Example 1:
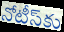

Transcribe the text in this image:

నోటీస్‌కు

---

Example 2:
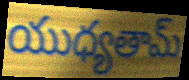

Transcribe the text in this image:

యుధ్యతామ్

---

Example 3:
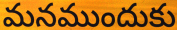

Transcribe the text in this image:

మనముందుకు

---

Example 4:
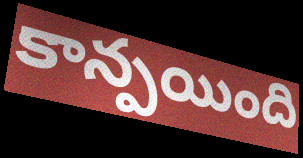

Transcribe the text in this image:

కాన్పయింది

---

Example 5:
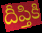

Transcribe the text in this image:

దీప్తికి